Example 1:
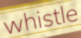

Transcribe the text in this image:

whistle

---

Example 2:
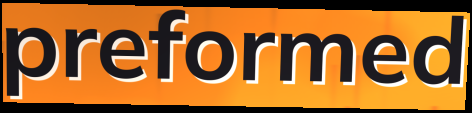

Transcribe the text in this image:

preformed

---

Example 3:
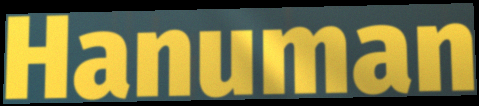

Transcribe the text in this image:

Hanuman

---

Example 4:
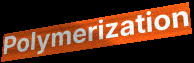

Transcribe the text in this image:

Polymerization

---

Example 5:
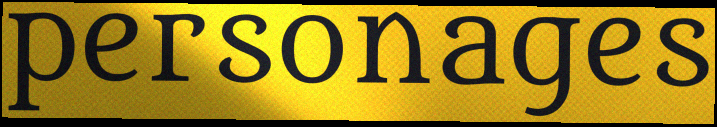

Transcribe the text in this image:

personages